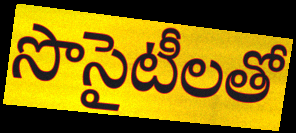
సొసైటీలతో